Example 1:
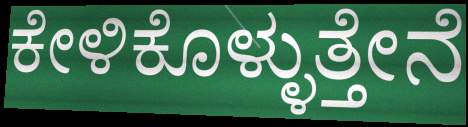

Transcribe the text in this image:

ಕೇಳಿಕೊಳ್ಳುತ್ತೇನೆ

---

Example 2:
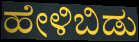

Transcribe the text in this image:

ಹೇಳಿಬಿಡು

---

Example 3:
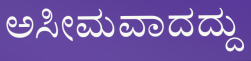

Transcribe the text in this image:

ಅಸೀಮವಾದದ್ದು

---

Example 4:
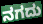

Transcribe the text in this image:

ನಗದು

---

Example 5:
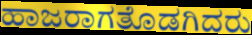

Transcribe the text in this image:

ಹಾಜರಾಗತೊಡಗಿದರು